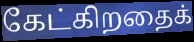
கேட்கிறதைக்